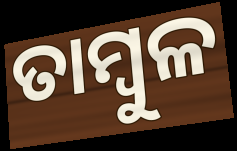
ତାମ୍ୱୁଳ